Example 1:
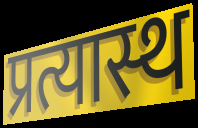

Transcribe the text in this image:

प्रत्यास्थ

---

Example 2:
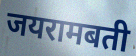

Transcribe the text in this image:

जयरामबती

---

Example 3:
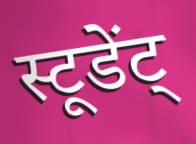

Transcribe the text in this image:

स्टूडेंट्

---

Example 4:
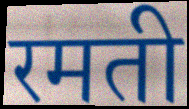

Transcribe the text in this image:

रमती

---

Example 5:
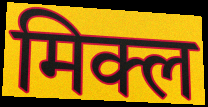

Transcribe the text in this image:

मिक्ल